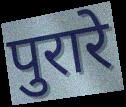
पुरारे